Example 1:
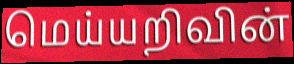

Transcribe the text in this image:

மெய்யறிவின்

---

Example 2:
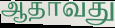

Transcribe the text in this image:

ஆதாவது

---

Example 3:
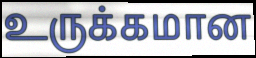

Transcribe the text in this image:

உருக்கமான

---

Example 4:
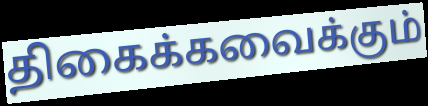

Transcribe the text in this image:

திகைக்கவைக்கும்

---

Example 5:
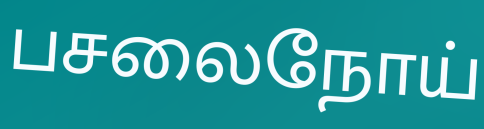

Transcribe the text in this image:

பசலைநோய்